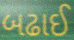
બઢાઈ